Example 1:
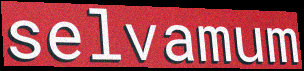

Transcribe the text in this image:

selvamum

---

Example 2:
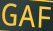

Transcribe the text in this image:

GAF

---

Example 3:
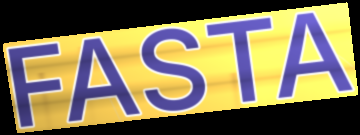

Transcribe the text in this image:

FASTA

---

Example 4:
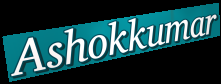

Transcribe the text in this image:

Ashokkumar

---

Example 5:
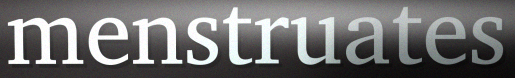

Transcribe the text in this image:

menstruates